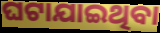
ଘଟାଯାଇଥିବା